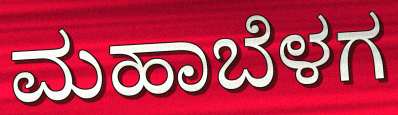
ಮಹಾಬೆಳಗ